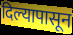
दिल्यापासून